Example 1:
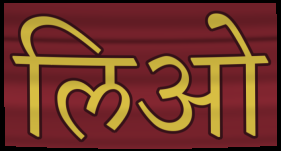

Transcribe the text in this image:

लिओ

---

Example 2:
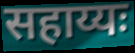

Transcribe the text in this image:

सहाय्यः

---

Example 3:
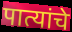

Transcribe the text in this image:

पात्यांचे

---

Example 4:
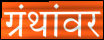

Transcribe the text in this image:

ग्रंथांवर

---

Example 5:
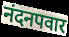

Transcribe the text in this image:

नंदनपवार